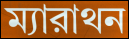
ম্যারাথন